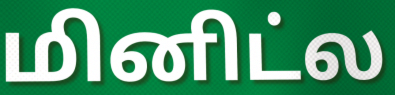
மினிட்ல